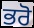
ਭਰੋ